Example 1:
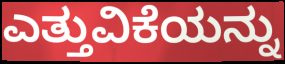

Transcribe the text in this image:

ಎತ್ತುವಿಕೆಯನ್ನು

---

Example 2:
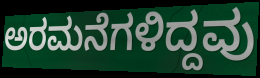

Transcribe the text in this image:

ಅರಮನೆಗಳಿದ್ದವು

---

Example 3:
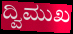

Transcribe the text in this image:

ದ್ವಿಮುಖ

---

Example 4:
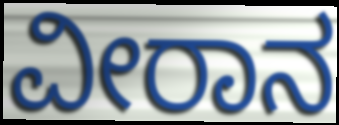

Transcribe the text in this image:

ವೀರಾನ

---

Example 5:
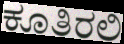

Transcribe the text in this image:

ಕೂತಿರಲಿ